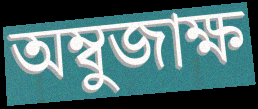
অম্বুজাক্ষ